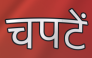
चपटें